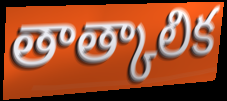
తాత్కాలిక